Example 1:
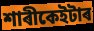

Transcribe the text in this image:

শাৰীকেইটাৰ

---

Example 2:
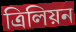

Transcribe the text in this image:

ত্ৰিলিয়ন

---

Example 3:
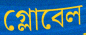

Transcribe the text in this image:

গ্লোবেল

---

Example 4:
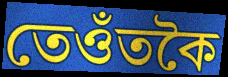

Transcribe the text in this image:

তেওঁতকৈ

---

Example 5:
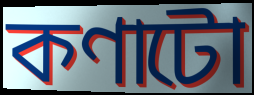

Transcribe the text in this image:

কণাটো